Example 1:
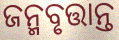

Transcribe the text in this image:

ଜନ୍ମବୃତ୍ତାନ୍ତ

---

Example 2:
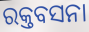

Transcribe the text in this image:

ରକ୍ତବସନା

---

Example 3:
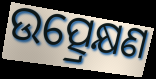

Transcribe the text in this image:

ଉତ୍ପ୍ରେକ୍ଷଣ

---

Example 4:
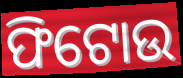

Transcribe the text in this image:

ଫିଟୋଉ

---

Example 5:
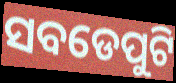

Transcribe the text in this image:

ସବଡେପୁଟି